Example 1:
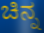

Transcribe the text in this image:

ಚಿನ್ನ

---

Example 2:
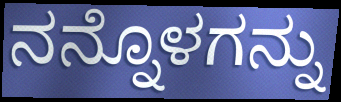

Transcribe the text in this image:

ನನ್ನೊಳಗನ್ನು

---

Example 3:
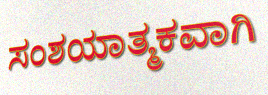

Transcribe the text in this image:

ಸಂಶಯಾತ್ಮಕವಾಗಿ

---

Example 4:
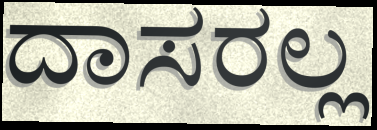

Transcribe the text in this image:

ದಾಸರಲ್ಲ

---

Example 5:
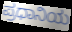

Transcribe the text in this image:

ಪ್ರಧಾನಿಯ